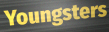
Youngsters